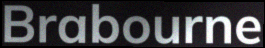
Brabourne